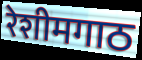
रेशीमगाठ